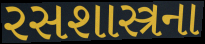
રસશાસ્ત્રના